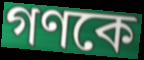
গণকে